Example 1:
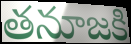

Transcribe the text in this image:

తనూజకి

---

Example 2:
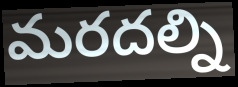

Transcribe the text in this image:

మరదల్ని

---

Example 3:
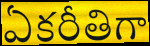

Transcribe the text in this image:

ఏకరీతిగా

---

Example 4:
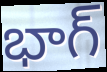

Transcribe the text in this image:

భాగ్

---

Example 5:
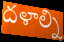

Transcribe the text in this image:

దళాల్ని